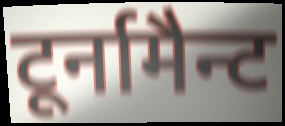
टूर्नामैन्ट